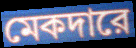
মেকদারে